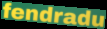
fendradu